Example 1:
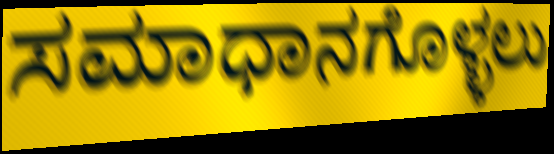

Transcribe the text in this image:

ಸಮಾಧಾನಗೊಳ್ಳಲು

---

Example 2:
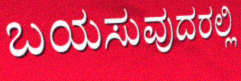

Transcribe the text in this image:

ಬಯಸುವುದರಲ್ಲಿ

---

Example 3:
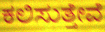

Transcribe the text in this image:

ಕಲಿಸುತ್ತೇವೆ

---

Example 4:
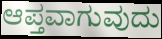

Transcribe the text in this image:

ಆಪ್ತವಾಗುವುದು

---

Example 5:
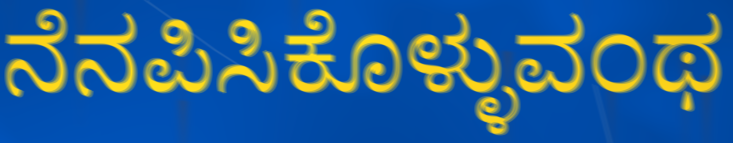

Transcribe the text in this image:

ನೆನಪಿಸಿಕೊಳ್ಳುವಂಥ